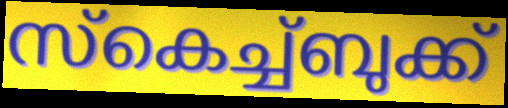
സ്‌കെച്ച്ബുക്ക്